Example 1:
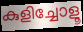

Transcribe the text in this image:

കുളിച്ചോളൂ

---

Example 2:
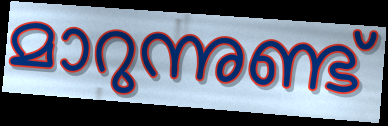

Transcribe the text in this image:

മാറുന്നുണ്ട്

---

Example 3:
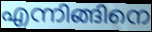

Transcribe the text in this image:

എന്നിങ്ങിനെ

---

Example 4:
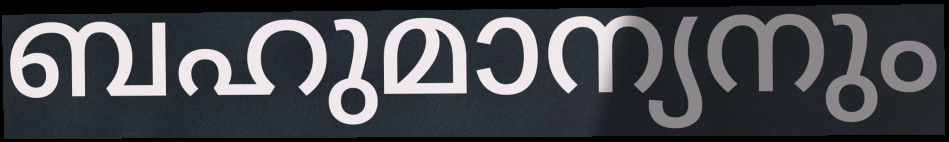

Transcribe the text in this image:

ബഹുമാന്യനും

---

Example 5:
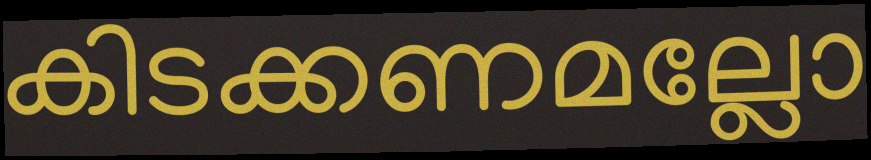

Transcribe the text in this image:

കിടക്കണമല്ലോ